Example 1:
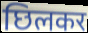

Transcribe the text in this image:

छिलकर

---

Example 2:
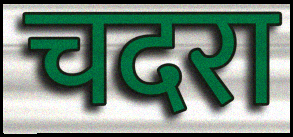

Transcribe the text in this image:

चदरा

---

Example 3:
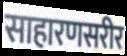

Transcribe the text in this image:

साहारणसरीर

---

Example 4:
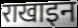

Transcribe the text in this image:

राखाइन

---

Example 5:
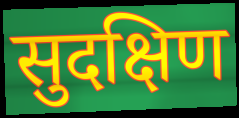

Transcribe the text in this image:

सुदक्षिण